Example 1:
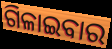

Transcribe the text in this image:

ଗିଳାଇବାର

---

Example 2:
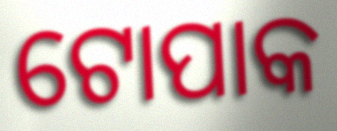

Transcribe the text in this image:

ଟୋପାକ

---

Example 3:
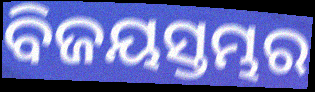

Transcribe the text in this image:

ବିଜୟସ୍ତମ୍ଭର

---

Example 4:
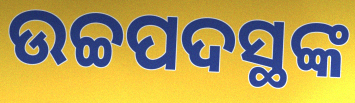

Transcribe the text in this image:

ଉଚ୍ଚପଦସ୍ଥଙ୍କ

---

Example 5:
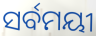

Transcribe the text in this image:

ସର୍ବମୟୀ